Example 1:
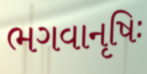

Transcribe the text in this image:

ભગવાનૃષિઃ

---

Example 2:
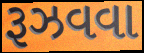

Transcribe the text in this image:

રૂઝવવા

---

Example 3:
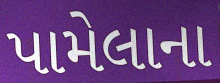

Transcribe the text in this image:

પામેલાના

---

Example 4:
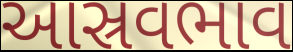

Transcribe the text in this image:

આસ્રવભાવ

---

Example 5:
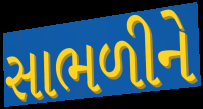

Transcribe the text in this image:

સાભળીને